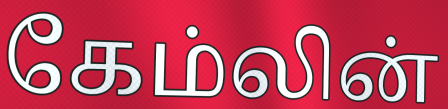
கேம்லின்